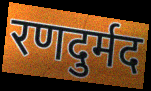
रणदुर्मद